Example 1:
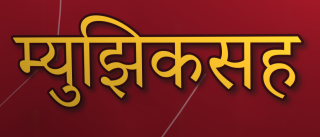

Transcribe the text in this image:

म्युझिकसह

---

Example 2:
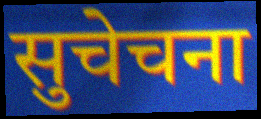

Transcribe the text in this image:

सुचेचना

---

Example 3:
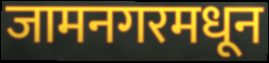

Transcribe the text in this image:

जामनगरमधून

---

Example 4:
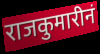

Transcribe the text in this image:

राजकुमारीनं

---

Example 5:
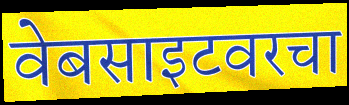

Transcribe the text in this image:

वेबसाइटवरचा